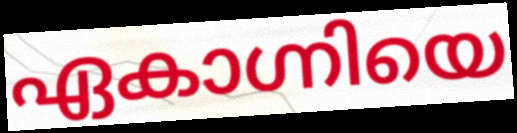
ഏകാഗ്നിയെ